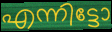
എന്നിട്ടോ